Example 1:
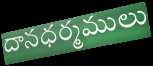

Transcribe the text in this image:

దానధర్మములు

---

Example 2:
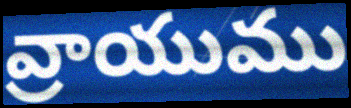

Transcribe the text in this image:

వ్రాయుము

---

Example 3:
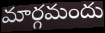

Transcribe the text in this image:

మార్గమందు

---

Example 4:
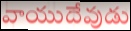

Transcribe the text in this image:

వాయుదేవుడు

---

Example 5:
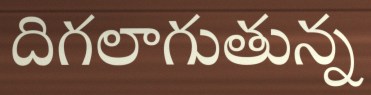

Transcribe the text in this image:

దిగలాగుతున్న